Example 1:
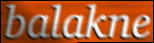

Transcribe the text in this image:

balakne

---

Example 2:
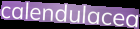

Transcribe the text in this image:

calendulacea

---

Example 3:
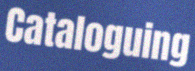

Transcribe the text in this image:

Cataloguing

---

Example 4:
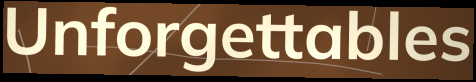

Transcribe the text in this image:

Unforgettables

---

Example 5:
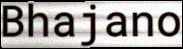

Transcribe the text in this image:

Bhajano